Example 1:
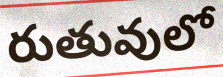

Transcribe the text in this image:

రుతువులో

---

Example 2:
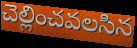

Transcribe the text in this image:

చెల్లించవలసిన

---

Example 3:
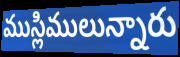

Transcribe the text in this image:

ముస్లిములున్నారు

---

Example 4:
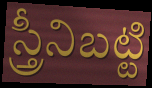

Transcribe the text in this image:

స్త్రీనిబట్టి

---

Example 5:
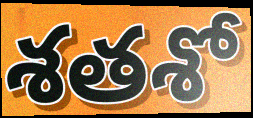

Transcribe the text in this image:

శతశో